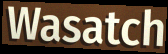
Wasatch